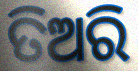
ତିଅରି